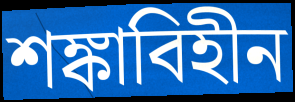
শঙ্কাবিহীন